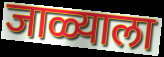
जाळ्याला